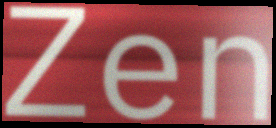
Zen